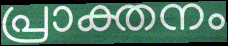
പ്രാക്തനം